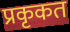
प्रकृकत